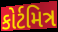
કોર્ટમિત્ર